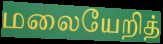
மலையேறித்